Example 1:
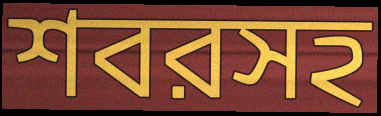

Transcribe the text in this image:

শবরসহ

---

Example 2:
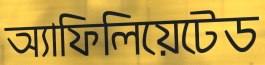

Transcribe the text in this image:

অ্যাফিলিয়েটেড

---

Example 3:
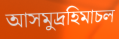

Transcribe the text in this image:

আসমুদ্রহিমাচল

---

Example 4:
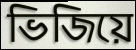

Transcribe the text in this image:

ভিজিয়ে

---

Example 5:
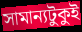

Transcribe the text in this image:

সামান্যটুকুই